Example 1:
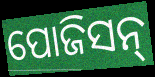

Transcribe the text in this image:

ପୋଜିସନ୍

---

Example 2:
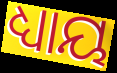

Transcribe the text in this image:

ଧ୍ୟାୟ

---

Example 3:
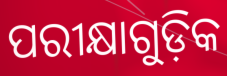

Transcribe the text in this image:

ପରୀକ୍ଷାଗୁଡ଼ିକ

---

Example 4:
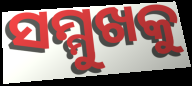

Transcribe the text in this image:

ସମ୍ମୁଖକୁ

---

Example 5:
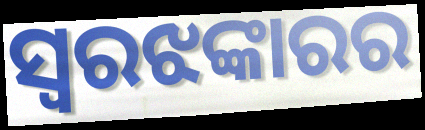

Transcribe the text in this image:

ସ୍ୱରଝଙ୍କାରର